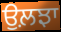
ਉਲ਼ਝਾ